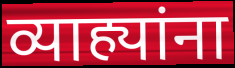
व्याह्यांना